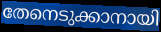
തേനെടുക്കാനായി